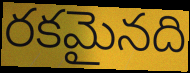
రకమైనది